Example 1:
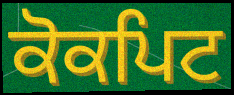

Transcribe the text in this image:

ਕੋਕਪਿਟ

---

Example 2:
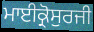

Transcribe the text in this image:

ਮਾਈਕ੍ਰੋਸੁਰਜੀ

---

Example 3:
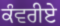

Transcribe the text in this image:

ਕੰਵਰੀਏ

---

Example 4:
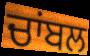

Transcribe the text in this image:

ਚਾਂਬਲ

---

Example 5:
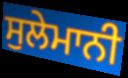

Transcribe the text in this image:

ਸੁਲੇਮਾਨੀ